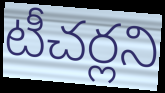
టీచర్లని